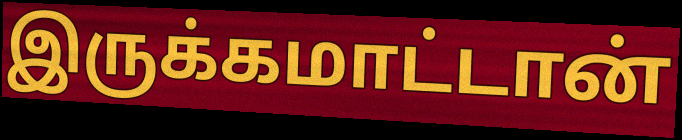
இருக்கமாட்டான்